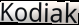
Kodiak